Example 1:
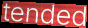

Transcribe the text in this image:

tended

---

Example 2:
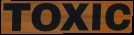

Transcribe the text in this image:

TOXIC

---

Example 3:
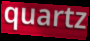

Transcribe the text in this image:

quartz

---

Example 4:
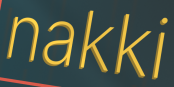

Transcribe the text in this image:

nakki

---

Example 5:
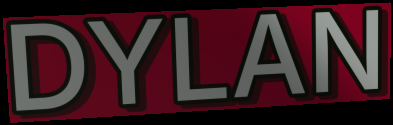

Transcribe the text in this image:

DYLAN